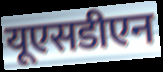
यूएसडीएन